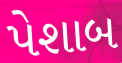
પેશાબ